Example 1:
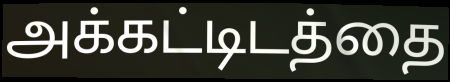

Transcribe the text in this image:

அக்கட்டிடத்தை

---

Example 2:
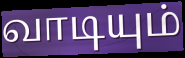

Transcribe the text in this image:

வாடியும்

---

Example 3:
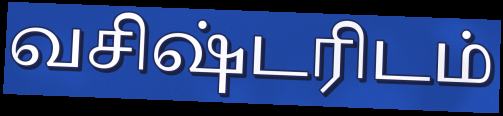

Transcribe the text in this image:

வசிஷ்டரிடம்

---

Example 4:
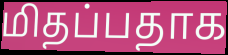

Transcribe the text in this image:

மிதப்பதாக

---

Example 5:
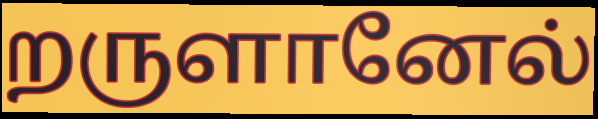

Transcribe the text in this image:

றருளானேல்